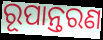
ରୂପାନ୍ତରଣ